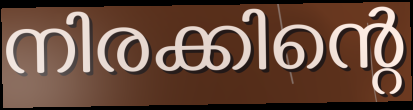
നിരക്കിന്റെ